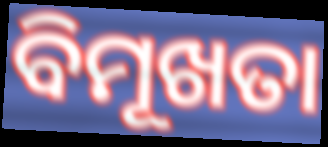
ବିମୂଖତା